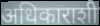
अधिकाराशी